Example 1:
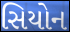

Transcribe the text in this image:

સિયોન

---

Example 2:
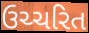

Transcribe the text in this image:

ઉચ્ચરિત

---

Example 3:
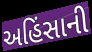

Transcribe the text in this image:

અહિંસાની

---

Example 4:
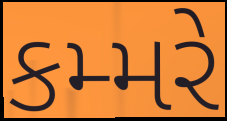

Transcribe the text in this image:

કમ્મરે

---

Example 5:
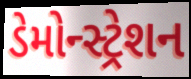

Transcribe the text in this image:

ડેમોન્સ્ટ્રેશન